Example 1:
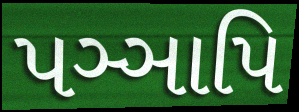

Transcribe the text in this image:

પઞ્ઞાપિ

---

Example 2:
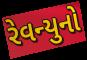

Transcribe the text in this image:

રેવન્યુનો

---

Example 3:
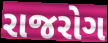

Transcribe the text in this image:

રાજરોગ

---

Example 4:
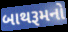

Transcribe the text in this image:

બાથરૂમનો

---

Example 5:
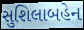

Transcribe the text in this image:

સુશિલાબહેન